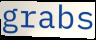
grabs